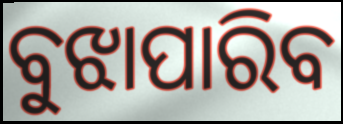
ବୁଝାପାରିବ